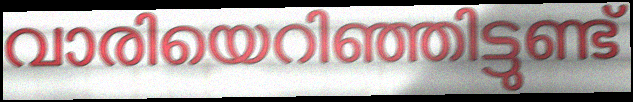
വാരിയെറിഞ്ഞിട്ടുണ്ട്